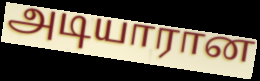
அடியாரான